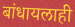
बांधायलाही